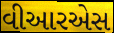
વીઆરએસ